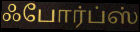
ஃபோர்ப்ஸ்